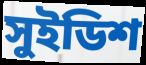
সুইডিশ